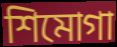
শিমোগা